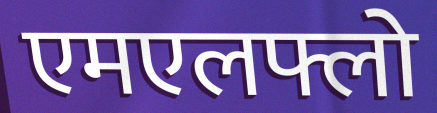
एमएलफ्लो